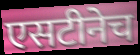
एसटीनेच